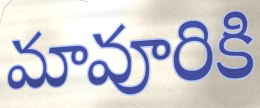
మావూరికి